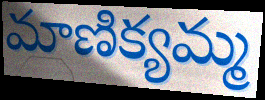
మాణిక్యమ్మ